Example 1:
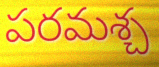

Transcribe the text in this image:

పరమశ్చ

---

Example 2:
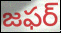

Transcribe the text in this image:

జఫర్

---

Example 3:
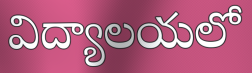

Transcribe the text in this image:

విద్యాలయలో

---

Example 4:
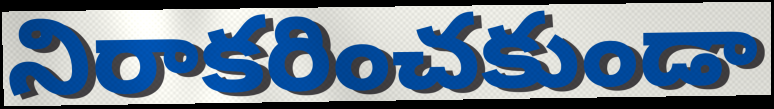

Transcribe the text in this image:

నిరాకరించకుండా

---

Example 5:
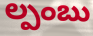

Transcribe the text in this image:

ల్పంబు